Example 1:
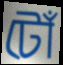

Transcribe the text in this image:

টোঁ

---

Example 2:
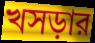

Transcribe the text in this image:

খসড়ার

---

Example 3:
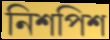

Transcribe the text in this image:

নিশপিশ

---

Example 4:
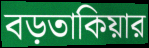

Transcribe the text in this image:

বড়তাকিয়ার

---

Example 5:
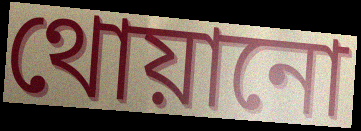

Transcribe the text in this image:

থোয়ানো